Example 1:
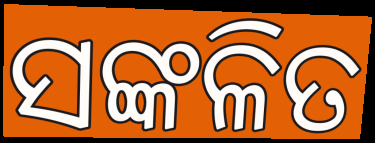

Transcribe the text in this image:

ସଙ୍କଳିତ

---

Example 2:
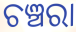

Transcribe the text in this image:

ଚଞ୍ଚରା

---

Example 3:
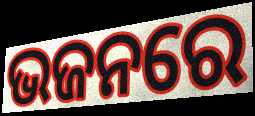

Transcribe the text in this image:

ଭଜନରେ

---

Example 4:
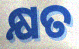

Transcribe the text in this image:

କ୍ଷତ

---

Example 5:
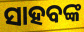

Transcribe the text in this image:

ସାହବଙ୍କ